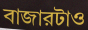
বাজারটাও